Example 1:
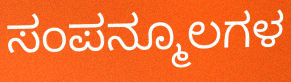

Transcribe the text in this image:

ಸಂಪನ್ಮೂಲಗಳ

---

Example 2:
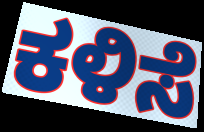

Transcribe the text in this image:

ಕಳಿಸೆ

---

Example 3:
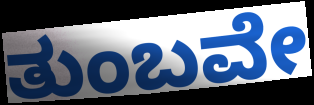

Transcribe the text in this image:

ತುಂಬವೇ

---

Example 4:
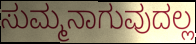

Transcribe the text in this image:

ಸುಮ್ಮನಾಗುವುದಲ್ಲ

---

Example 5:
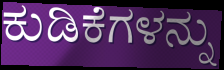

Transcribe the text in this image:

ಕುಡಿಕೆಗಳನ್ನು